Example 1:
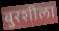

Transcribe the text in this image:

बुरशीला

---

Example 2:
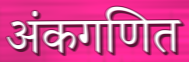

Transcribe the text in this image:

अंकगणित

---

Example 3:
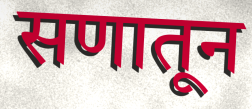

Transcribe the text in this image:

सणातून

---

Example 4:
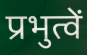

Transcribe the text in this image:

प्रभुत्वें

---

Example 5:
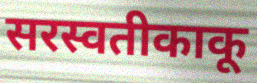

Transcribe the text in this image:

सरस्वतीकाकू